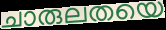
ചാരുലതയെ